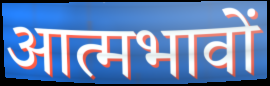
आत्मभावों